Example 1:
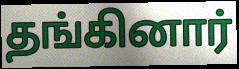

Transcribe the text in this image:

தங்கினார்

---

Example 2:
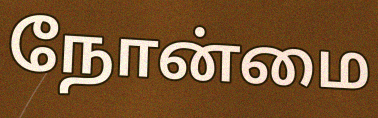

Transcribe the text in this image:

நோன்மை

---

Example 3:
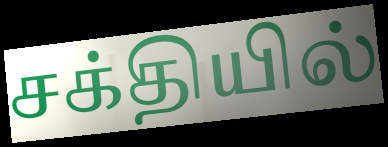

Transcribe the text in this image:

சக்தியில்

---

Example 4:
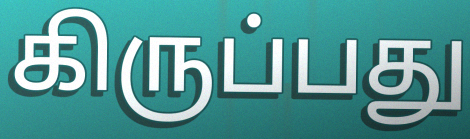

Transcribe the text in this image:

கிருப்பது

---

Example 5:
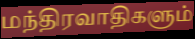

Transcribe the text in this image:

மந்திரவாதிகளும்